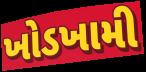
ખોડખામી